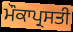
ਮੌਕਾਪ੍ਰਸਤੀ